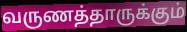
வருணத்தாருக்கும்